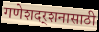
गणेशदर्शनासाठी